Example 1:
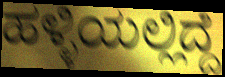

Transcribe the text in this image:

ಹಳ್ಳಿಯಲ್ಲಿದ್ದೆ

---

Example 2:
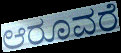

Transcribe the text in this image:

ಆರೂವರೆ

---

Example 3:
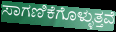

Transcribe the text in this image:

ಸಾಗಣಿಕೆಗೊಳ್ಳುತ್ತವೆ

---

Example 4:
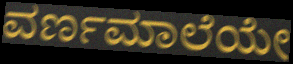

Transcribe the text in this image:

ವರ್ಣಮಾಲೆಯೇ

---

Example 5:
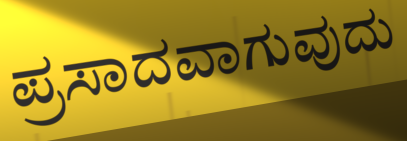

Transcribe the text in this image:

ಪ್ರಸಾದವಾಗುವುದು